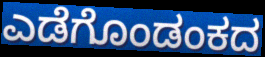
ಎಡೆಗೊಂಡಂಕದ